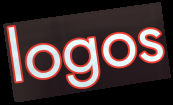
logos